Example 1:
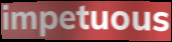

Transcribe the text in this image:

impetuous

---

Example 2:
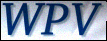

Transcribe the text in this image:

WPV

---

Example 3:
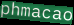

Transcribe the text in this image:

phmacao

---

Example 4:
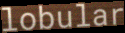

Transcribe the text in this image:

lobular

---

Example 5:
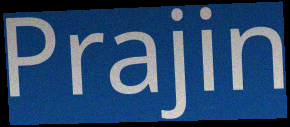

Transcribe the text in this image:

Prajin